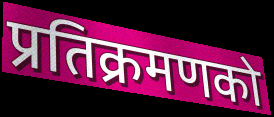
प्रतिक्रमणको